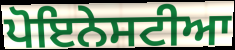
ਪੋਇਨੇਸਟੀਆ